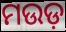
ମଉଡ଼